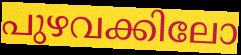
പുഴവക്കിലോ